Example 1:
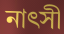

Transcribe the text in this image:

নাৎসী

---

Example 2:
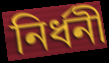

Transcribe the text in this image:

নির্ধনী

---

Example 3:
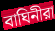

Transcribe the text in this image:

বাঘিনীরা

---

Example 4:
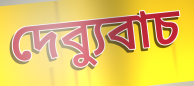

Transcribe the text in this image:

দেব্যুবাচ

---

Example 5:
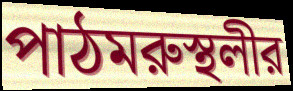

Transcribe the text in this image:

পাঠমরুস্থলীর